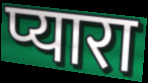
प्‍यारा